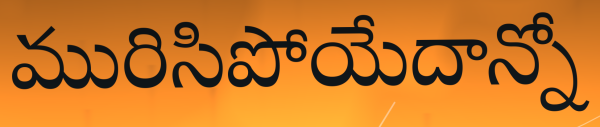
మురిసిపోయేదాన్నో